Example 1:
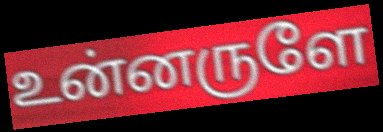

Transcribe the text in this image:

உன்னருளே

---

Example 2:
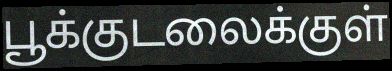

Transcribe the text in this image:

பூக்குடலைக்குள்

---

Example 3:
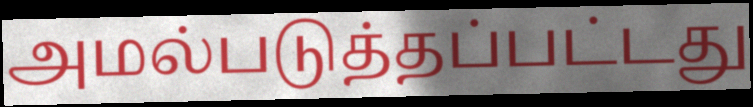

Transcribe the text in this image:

அமல்படுத்தப்பட்டது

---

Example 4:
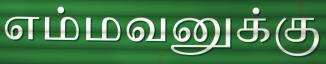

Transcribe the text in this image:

எம்மவனுக்கு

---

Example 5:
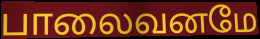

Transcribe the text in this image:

பாலைவனமே